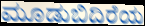
ಮೂಡುಬಿದಿರೆಯ